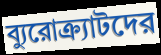
ব্যুরোক্র্যাটদের